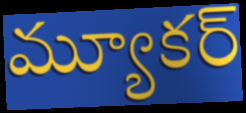
మ్యూకర్